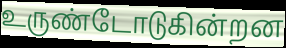
உருண்டோடுகின்றன